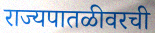
राज्यपातळीवरची